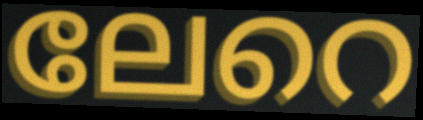
ലേറെ